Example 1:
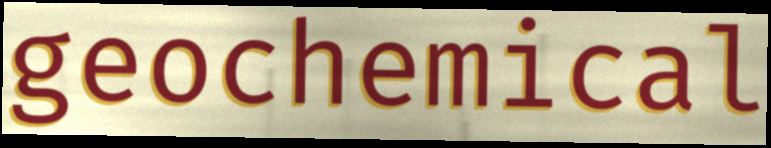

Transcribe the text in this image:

geochemical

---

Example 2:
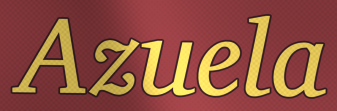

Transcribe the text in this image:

Azuela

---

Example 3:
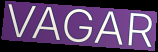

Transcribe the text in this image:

VAGAR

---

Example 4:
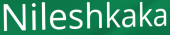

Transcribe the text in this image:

Nileshkaka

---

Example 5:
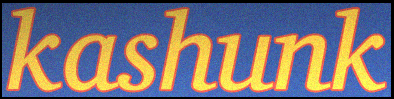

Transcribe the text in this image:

kashunk